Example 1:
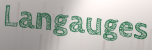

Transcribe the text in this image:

Langauges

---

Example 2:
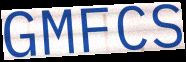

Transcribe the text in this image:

GMFCS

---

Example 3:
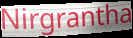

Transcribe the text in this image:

Nirgrantha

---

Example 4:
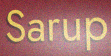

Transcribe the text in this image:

Sarup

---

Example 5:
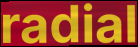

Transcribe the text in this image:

radial